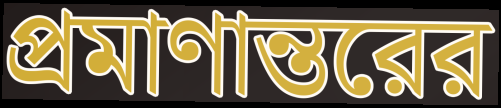
প্রমাণান্তরের